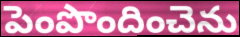
పెంపొందించెను